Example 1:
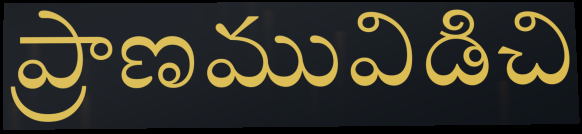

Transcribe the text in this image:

ప్రాణమువిడిచి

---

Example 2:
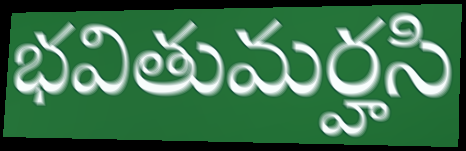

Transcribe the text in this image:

భవితుమర్హసి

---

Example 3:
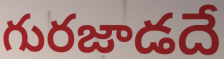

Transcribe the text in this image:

గురజాడదే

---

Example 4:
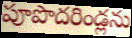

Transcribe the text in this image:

పూపొదరిండ్లను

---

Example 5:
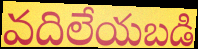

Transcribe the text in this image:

వదిలేయబడి